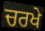
ਚਰਖੇ